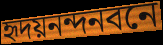
হৃদয়নন্দনবনে